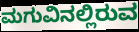
ಮಗುವಿನಲ್ಲಿರುವ